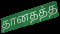
தானதத்த